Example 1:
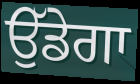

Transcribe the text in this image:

ਉੱਡੇਗਾ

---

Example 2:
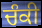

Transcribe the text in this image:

ਚੰਕੀ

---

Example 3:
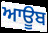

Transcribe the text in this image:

ਆਊਬ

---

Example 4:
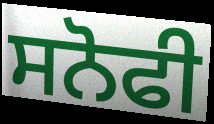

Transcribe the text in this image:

ਸਨੋਫੀ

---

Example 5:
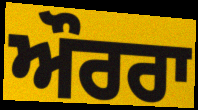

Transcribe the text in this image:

ਔਰਰਾ